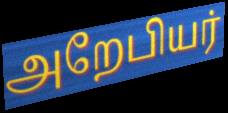
அறேபியர்